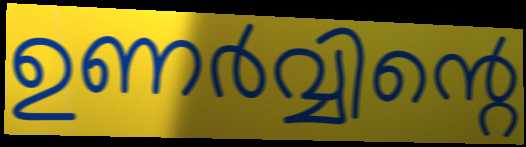
ഉണർവ്വിന്റെ